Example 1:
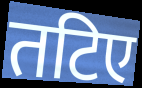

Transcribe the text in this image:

तटिए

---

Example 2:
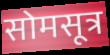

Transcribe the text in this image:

सोमसूत्र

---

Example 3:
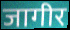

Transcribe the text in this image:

जागीर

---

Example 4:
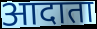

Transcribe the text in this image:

आदाता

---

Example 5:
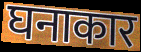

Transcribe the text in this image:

घनाकार